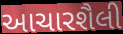
આચારશૈલી